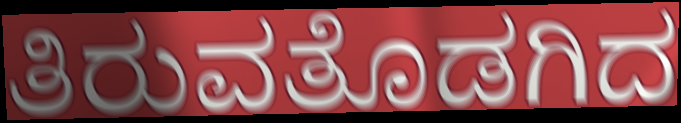
ತಿರುವತೊಡಗಿದ